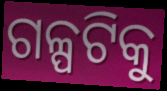
ଗଳ୍ପଟିକୁ